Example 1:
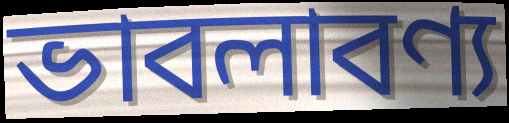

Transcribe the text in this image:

ভাবলাবণ্য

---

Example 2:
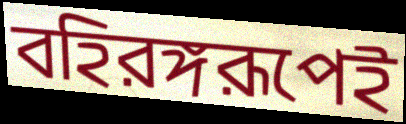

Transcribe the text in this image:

বহিরঙ্গরূপেই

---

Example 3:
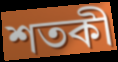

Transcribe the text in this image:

শতকী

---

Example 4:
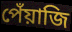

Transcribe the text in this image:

পেঁয়াজি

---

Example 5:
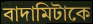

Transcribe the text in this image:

বাদামিটাকে